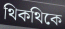
থিকথিকে